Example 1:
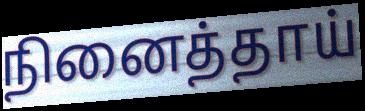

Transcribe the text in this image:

நினைத்தாய்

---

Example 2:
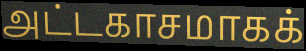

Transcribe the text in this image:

அட்டகாசமாகக்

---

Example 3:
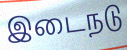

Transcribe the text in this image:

இடைநடு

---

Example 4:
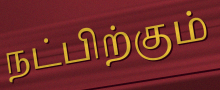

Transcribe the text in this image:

நட்பிற்கும்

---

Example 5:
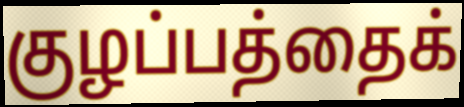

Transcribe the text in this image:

குழப்பத்தைக்